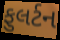
ફુલર્ટન